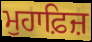
ਮੁਹਾਫ਼ਿਜ਼